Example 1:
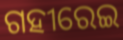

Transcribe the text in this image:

ଗହୀରେଇ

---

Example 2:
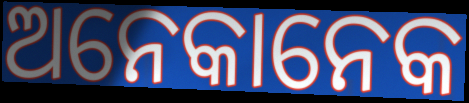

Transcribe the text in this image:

ଅନେକାନେକ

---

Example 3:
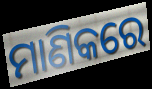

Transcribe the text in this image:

ମାଣିକରେ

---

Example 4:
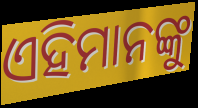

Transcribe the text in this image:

ଏହିମାନଙ୍କୁ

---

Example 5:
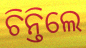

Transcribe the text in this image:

ଚିନ୍ତିଲେ